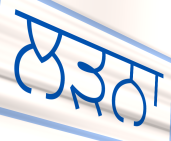
ਲੜਨਾ